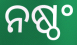
ନଷ୍ଠଂ